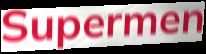
Supermen